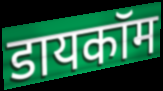
डायकॉम